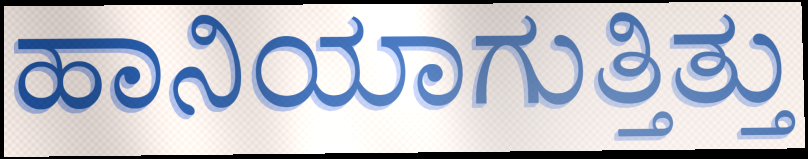
ಹಾನಿಯಾಗುತ್ತಿತ್ತು